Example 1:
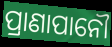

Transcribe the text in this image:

ପ୍ରାଣାପାନୌ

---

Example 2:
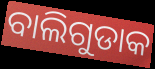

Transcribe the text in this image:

ବାଲିଗୁଡାକ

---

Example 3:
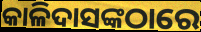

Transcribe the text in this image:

କାଳିଦାସଙ୍କଠାରେ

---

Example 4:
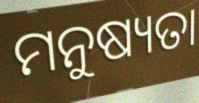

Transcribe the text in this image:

ମନୁଷ୍ୟତା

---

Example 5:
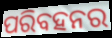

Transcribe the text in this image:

ପରିବହନର